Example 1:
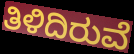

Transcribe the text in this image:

ತಿಳಿದಿರುವೆ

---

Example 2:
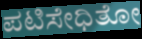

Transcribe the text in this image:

ಪಟಿಸೇಧಿತೋ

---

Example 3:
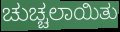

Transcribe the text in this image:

ಚುಚ್ಚಲಾಯಿತು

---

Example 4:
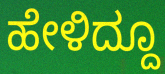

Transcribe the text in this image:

ಹೇಳಿದ್ದೂ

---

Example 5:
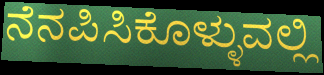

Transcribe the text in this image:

ನೆನಪಿಸಿಕೊಳ್ಳುವಲ್ಲಿ